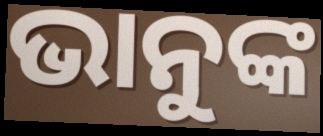
ଭାନୁଙ୍କ